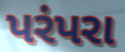
પરંપરા